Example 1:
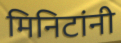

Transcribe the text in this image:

मिनिटांनी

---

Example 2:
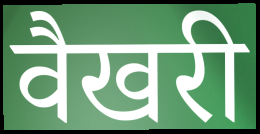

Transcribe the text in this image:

वैखरी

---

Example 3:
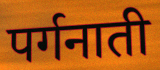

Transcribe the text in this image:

पर्गनाती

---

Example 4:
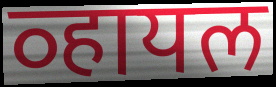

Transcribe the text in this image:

व्हायल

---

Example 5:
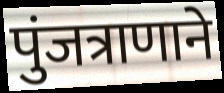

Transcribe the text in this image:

पुंजत्राणाने